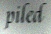
piled